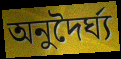
অনুদৈর্ঘ্য